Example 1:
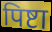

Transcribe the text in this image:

पिष्टा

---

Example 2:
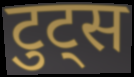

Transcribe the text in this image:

टुट्स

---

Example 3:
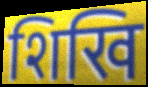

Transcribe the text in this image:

शिखि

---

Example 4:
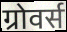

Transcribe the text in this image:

ग्रोवर्स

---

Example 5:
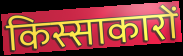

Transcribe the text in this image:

किस्साकारों